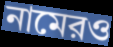
নামেরও